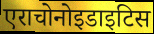
एराचोनोइडाइटिस